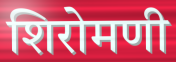
शिरोमणी